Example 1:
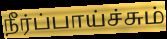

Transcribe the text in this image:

நீர்ப்பாய்ச்சும்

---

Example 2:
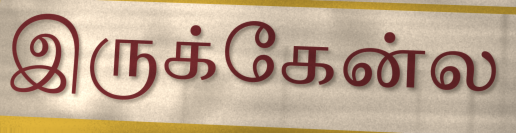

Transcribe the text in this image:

இருக்கேன்ல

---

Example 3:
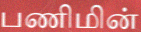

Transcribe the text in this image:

பணிமின்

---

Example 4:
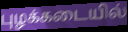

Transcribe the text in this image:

புழக்கடையில்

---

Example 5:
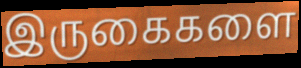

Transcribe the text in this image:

இருகைகளை